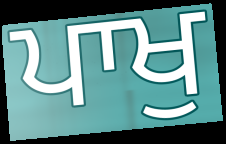
ਪਾਖੁ